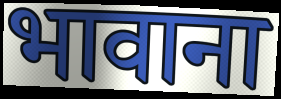
भावाना